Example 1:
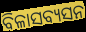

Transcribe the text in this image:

ବିଳାସବ୍ୟସନ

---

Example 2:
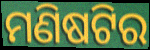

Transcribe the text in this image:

ମଣିଷଟିର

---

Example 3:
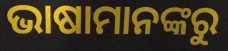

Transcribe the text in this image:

ଭାଷାମାନଙ୍କରୁ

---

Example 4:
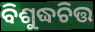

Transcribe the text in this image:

ବିଶୁଦ୍ଧଚିତ୍ତ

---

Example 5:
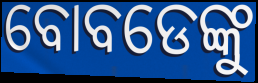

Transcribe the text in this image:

ବୋବଡେଙ୍କୁ